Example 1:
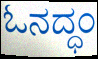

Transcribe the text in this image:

ಓನದ್ಧಂ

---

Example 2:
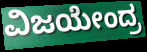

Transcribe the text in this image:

ವಿಜಯೇಂದ್ರ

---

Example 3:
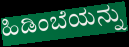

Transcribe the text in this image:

ಹಿಡಿಂಬೆಯನ್ನು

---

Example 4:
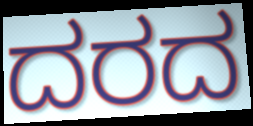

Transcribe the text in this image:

ದರದ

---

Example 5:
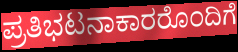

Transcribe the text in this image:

ಪ್ರತಿಭಟನಾಕಾರರೊಂದಿಗೆ